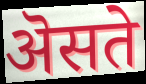
ऄसते